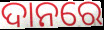
ଦାନରେ